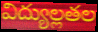
విద్యుల్లతల